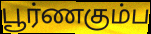
பூர்ணகும்ப